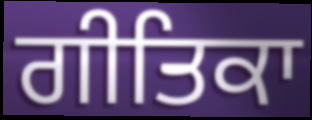
ਗੀਤਿਕਾ